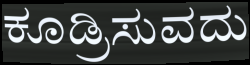
ಕೂಡ್ರಿಸುವದು